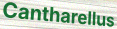
Cantharellus